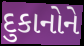
દુકાનોને